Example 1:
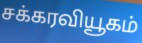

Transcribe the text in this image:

சக்கரவியூகம்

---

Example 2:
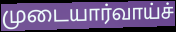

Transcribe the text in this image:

முடையார்வாய்ச்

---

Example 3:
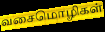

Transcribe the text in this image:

வசைமொழிகள்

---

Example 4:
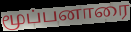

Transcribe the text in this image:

மூப்பனாரை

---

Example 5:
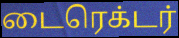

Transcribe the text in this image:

டைரெக்டர்